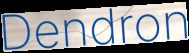
Dendron